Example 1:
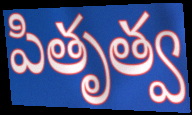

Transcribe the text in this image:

పితృత్వ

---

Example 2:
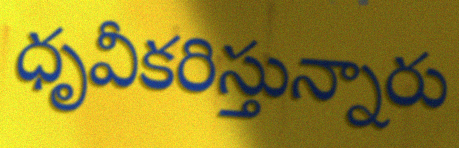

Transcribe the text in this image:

ధృవీకరిస్తున్నారు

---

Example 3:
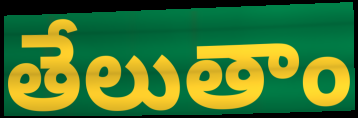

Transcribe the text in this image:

తేలుతాం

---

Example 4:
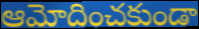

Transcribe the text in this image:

ఆమోదించకుండా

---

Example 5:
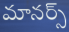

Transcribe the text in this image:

మానర్స్